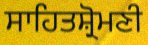
ਸਾਹਿਤਸ਼੍ਰੋਮਣੀ